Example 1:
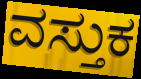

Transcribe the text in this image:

ವಸ್ತುಕ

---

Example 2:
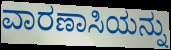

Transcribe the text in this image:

ವಾರಣಾಸಿಯನ್ನು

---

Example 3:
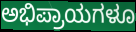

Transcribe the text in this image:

ಅಭಿಪ್ರಾಯಗಳೂ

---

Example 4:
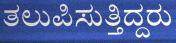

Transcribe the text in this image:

ತಲುಪಿಸುತ್ತಿದ್ದರು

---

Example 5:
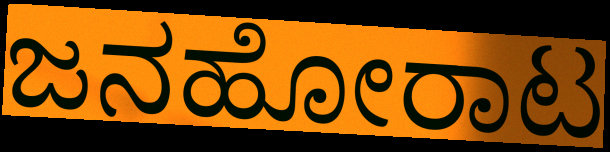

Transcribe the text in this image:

ಜನಹೋರಾಟ